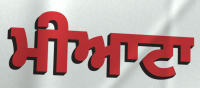
ਮੀਆਟਾ